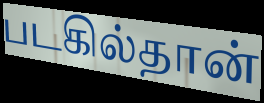
படகில்தான்